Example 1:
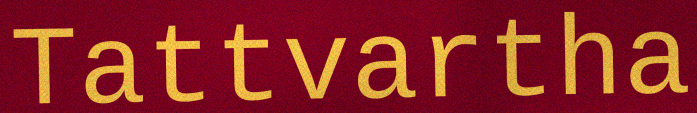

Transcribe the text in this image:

Tattvartha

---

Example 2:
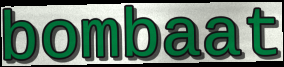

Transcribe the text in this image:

bombaat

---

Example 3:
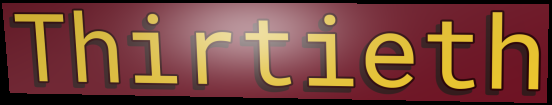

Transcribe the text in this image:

Thirtieth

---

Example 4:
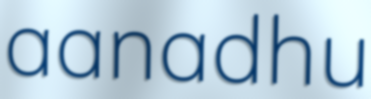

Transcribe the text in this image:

aanadhu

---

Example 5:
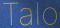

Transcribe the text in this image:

Talo